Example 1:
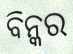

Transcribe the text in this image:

ବିନ୍କର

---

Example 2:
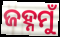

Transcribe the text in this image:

ଜହ୍ନମୁଁ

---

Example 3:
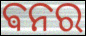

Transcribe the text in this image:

ଵନର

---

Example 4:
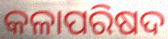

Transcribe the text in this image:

କଳାପରିଷଦ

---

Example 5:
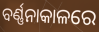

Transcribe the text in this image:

ବର୍ଣ୍ଣନାକାଳରେ